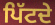
ਪਿੱਟਦੇ